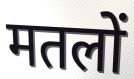
मतलों